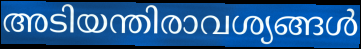
അടിയന്തിരാവശ്യങ്ങൾ